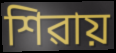
শিৱায়